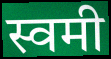
स्वमी